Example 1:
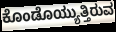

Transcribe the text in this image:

ಕೊಂಡೊಯ್ಯುತ್ತಿರುವ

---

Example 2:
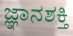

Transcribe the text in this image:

ಜ್ಞಾನಶಕ್ತಿ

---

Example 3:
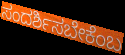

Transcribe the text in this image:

ಸಂದರ್ಶಿಸಬೇಕೆಂಬ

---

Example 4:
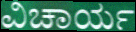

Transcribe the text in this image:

ವಿಚಾರ್ಯ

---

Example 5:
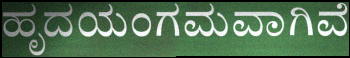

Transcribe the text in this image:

ಹೃದಯಂಗಮವಾಗಿವೆ